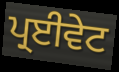
ਪ੍ਰਈਵੇਟ